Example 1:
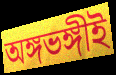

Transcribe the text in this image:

অঙ্গভঙ্গীই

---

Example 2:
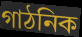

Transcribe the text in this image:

গাঠনিক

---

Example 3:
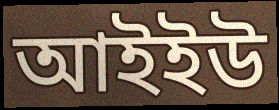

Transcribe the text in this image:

আইইউ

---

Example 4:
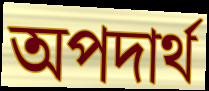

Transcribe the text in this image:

অপদার্থ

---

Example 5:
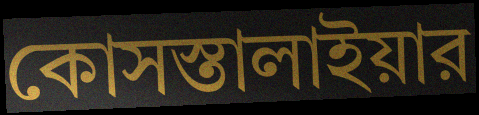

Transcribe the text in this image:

কোসস্তালাইয়ার